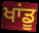
ਖਾਂਡੂ